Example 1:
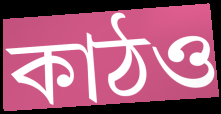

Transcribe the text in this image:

কাঠও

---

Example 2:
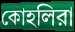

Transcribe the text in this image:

কোহলিরা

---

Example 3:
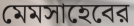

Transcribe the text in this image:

মেমসাহেবের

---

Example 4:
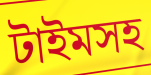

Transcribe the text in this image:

টাইমসহ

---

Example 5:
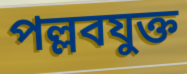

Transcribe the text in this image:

পল্লবযুক্ত